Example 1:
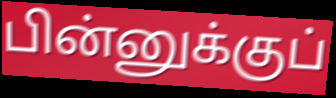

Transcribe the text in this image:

பின்னுக்குப்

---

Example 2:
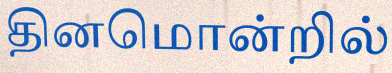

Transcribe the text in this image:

தினமொன்றில்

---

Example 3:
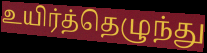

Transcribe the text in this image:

உயிர்த்தெழுந்து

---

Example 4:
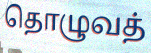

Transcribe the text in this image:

தொழுவத்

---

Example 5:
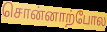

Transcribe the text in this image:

சொன்னாற்போல